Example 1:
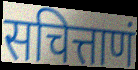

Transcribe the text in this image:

सचित्ताणं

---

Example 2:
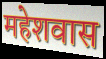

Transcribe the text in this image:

महेशवास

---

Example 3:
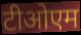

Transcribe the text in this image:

टीओएम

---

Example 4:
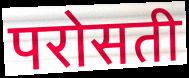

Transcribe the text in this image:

परोसती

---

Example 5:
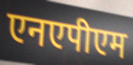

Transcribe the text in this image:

एनएपीएम